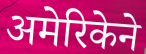
अमेरिकेने